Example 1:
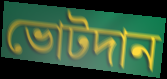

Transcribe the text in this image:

ভোটদান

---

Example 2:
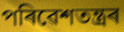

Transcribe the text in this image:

পৰিৱেশতন্ত্ৰৰ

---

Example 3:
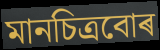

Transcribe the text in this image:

মানচিত্ৰবোৰ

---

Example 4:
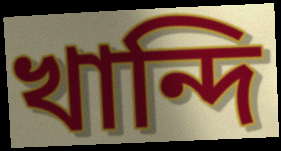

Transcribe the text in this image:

খান্দি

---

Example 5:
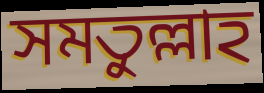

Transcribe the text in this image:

সমতুল্লাহ